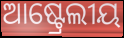
ଆଷ୍ଟ୍ରେଲୀୟ